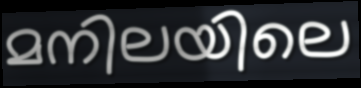
മനിലയിലെ